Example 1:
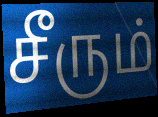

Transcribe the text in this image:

சீரும்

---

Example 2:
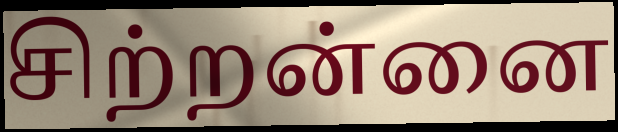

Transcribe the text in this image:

சிற்றன்னை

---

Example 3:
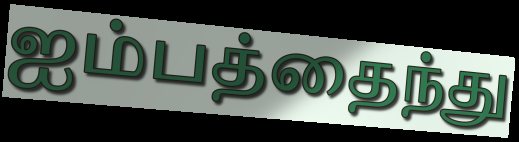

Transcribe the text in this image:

ஐம்பத்தைந்து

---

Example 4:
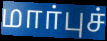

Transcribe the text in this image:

மார்புச்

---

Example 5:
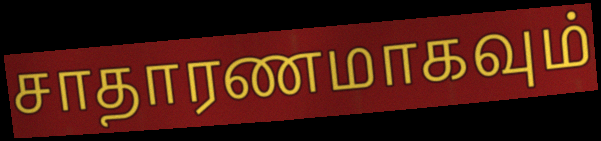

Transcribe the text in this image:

சாதாரணமாகவும்